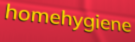
homehygiene